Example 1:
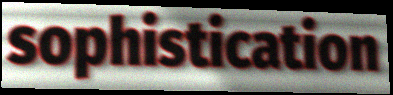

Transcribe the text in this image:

sophistication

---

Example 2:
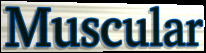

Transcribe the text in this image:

Muscular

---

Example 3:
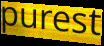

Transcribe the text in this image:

purest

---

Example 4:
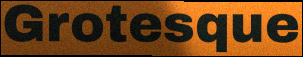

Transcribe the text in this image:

Grotesque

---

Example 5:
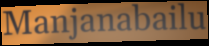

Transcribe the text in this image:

Manjanabailu